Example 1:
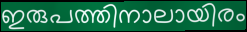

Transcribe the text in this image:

ഇരുപത്തിനാലായിരം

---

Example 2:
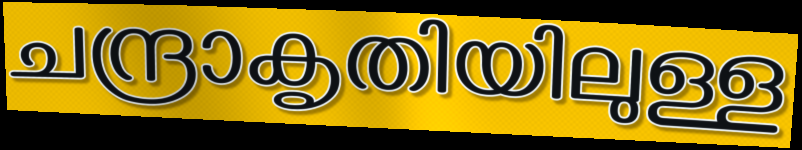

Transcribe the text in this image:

ചന്ദ്രാകൃതിയിലുള്ള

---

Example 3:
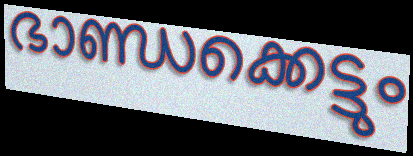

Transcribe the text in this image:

ഭാണ്ഡക്കെട്ടും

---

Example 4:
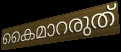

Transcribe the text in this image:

കൈമാറരുത്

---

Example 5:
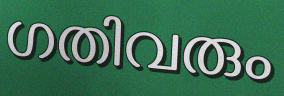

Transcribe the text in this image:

ഗതിവരും